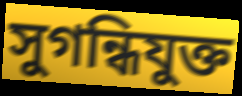
সুগন্ধিযুক্ত